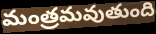
మంత్రమవుతుంది